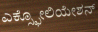
ಎಕ್ಸ್ಫೋಲಿಯೇಶನ್